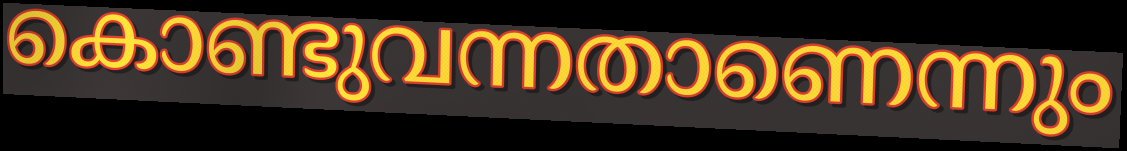
കൊണ്ടുവന്നതാണെന്നും